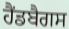
ਹੈਂਡਬੈਗਸ